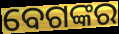
ବେଗଙ୍କର